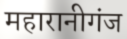
महारानीगंज